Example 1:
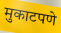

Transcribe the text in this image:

मुकाटपणे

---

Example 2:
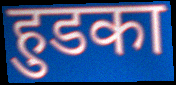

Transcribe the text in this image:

हुडका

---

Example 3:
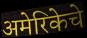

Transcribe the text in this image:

अमेरिकेचे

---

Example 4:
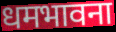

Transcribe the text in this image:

धमभावना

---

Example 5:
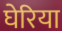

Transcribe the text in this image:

घेरिया